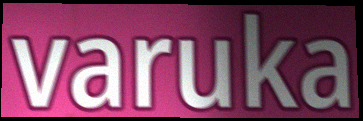
varuka